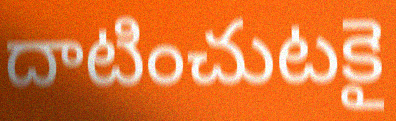
దాటించుటకై